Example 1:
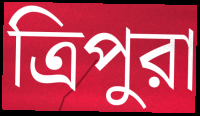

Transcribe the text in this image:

ত্রিপুরা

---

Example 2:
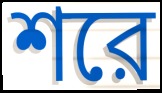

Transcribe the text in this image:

শরে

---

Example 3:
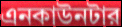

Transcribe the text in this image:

এনকাউনটার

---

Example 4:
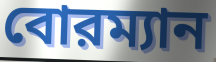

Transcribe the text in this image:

বোরম্যান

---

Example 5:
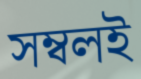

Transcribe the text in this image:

সম্বলই